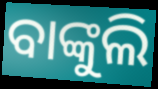
ବାଙ୍କୁଲି